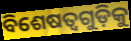
ବିଶେଷତ୍ୱଗୁଡ଼ିକୁ